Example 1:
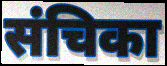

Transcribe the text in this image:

संचिका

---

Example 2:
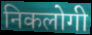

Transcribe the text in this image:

निकलोगी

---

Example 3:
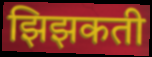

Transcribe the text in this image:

झिझकती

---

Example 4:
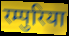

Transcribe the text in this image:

रम्पुरिया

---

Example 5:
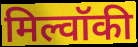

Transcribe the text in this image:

मिल्वॉकी